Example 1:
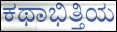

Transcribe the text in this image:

ಕಥಾಭಿತ್ತಿಯ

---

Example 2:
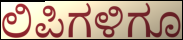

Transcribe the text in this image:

ಲಿಪಿಗಳಿಗೂ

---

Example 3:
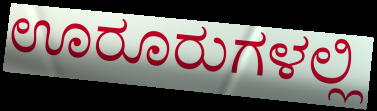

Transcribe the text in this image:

ಊರೂರುಗಳಲ್ಲಿ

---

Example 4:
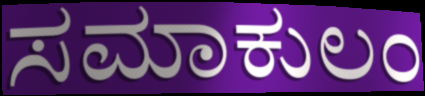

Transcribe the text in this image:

ಸಮಾಕುಲಂ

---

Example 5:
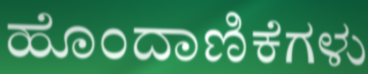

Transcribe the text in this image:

ಹೊಂದಾಣಿಕೆಗಳು